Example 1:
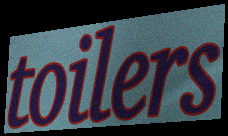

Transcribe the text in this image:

toilers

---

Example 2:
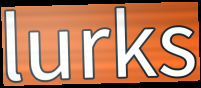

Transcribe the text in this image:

lurks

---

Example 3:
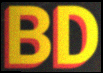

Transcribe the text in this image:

BD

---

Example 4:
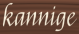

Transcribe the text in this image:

kannige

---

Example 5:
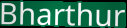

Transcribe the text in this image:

Bharthur